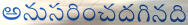
అనుసరించదగినది